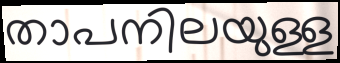
താപനിലയുള്ള